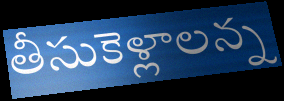
తీసుకెళ్లాలన్న